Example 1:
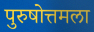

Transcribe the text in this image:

पुरुषोत्तमला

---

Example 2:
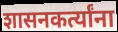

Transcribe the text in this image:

शासनकर्त्यांना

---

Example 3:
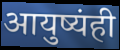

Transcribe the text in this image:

आयुष्यंही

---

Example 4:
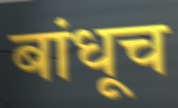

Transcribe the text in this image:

बांधूच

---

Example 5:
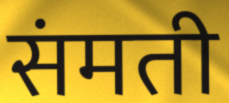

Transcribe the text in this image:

संमती